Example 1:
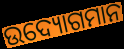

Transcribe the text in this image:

ଉଦ୍ୟୋଗମାନ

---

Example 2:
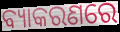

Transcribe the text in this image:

ବ୍ୟାକରଣରେ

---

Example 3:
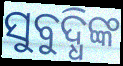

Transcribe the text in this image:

ସୁବୁଦ୍ଧିଙ୍କ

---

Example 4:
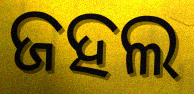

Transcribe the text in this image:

ଜହଲ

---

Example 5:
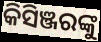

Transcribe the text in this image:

କିସିଞ୍ଜରଙ୍କୁ